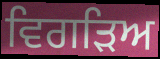
ਵਿਗੜਿਅ